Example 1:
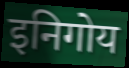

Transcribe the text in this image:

इनिगोय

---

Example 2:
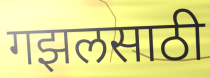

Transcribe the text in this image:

गझलसाठी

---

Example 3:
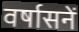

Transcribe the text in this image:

वर्षासनें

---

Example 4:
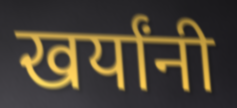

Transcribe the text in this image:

खर्यांनी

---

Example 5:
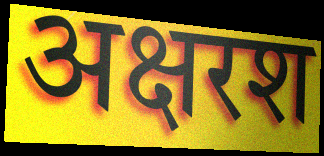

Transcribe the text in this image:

अक्षरश